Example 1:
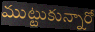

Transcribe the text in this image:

ముట్టుకున్నారో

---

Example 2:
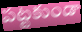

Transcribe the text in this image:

పట్టకుండా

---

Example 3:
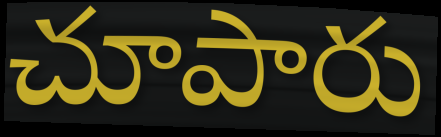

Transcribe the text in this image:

చూపారు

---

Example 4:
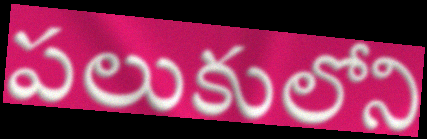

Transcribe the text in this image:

పలుకులోని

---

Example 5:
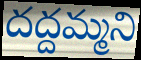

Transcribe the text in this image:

దద్దమ్మని